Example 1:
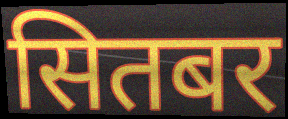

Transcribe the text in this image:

सितबर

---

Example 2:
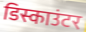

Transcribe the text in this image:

डिस्काउंटर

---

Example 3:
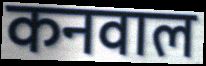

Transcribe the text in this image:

कनवाल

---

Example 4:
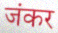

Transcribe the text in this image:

जंकर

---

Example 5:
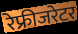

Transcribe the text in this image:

रेफ्रीजरेटर